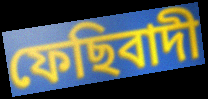
ফেছিবাদী